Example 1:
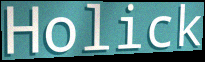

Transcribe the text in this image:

Holick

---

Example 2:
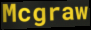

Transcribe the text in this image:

Mcgraw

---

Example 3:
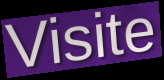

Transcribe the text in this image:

Visite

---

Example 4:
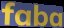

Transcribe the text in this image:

faba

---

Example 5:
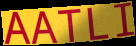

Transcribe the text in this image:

AATLI